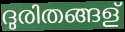
ദുരിതങ്ങള്